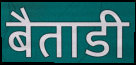
बैताडी